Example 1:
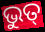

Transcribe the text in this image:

ଭୁତ୍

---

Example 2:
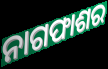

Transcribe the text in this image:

ନାଗଫାଶର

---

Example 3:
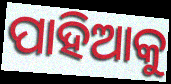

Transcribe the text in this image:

ପାହିଆକୁ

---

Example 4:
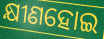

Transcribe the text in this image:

କ୍ଷୀଣହୋଇ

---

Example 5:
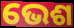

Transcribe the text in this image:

ଭେଶ